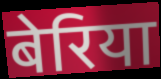
बेरिया